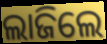
ଲାଜିଲେ